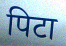
पिटा